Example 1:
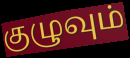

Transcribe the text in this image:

குழுவும்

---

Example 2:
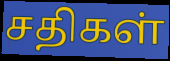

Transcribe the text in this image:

சதிகள்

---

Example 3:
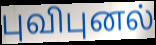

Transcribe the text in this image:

புவிபுனல்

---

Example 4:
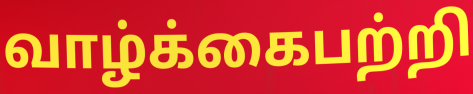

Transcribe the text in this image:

வாழ்க்கைபற்றி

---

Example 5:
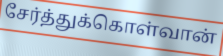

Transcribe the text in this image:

சேர்த்துக்கொள்வான்